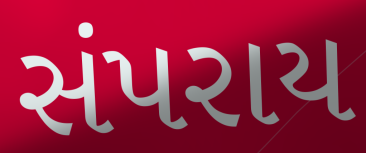
સંપરાય